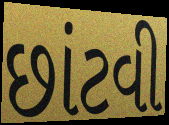
છાંટવી